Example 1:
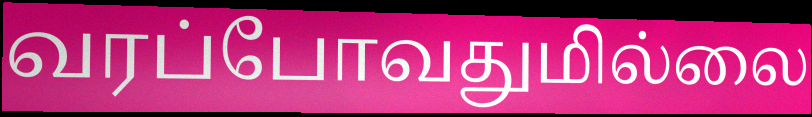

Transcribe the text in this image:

வரப்போவதுமில்லை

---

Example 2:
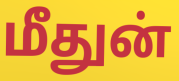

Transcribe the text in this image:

மீதுன்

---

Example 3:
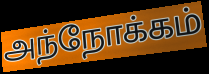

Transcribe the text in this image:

அந்நோக்கம்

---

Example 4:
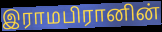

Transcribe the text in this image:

இராமபிரானின்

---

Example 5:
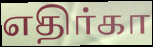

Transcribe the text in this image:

எதிர்கா